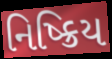
નિષ્ક્રિય